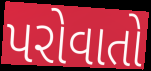
પરોવાતો